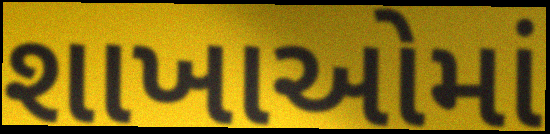
શાખાઓમાં